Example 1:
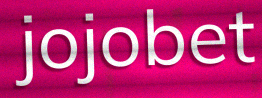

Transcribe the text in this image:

jojobet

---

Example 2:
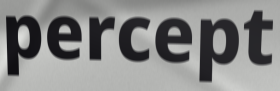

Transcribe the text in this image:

percept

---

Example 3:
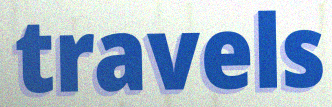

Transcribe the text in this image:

travels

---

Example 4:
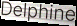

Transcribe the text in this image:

Delphine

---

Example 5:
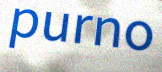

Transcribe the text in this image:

purno